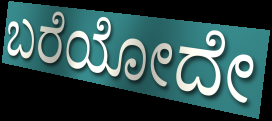
ಬರೆಯೋದೇ